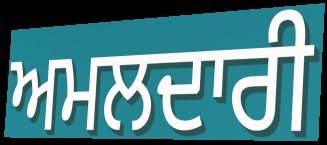
ਅਮਲਦਾਰੀ